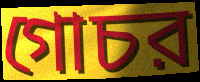
গোচর